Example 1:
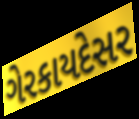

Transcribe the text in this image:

ગેરકાયદેસર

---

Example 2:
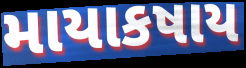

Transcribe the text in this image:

માયાકષાય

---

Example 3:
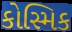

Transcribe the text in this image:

કોસ્મિક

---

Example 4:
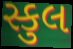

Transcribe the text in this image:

સ્કુલ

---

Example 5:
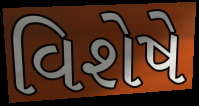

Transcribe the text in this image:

વિશેષે